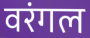
वरंगल